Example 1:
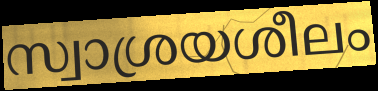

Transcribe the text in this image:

സ്വാശ്രയശീലം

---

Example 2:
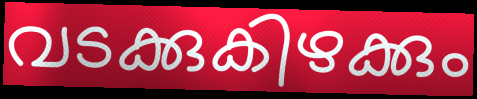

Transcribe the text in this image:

വടക്കുകിഴക്കും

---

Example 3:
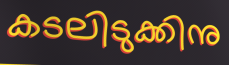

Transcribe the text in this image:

കടലിടുക്കിനു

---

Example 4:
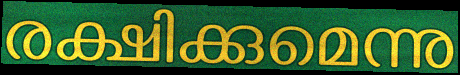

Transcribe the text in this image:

രക്ഷിക്കുമെന്നു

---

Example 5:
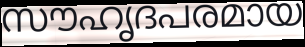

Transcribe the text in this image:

സൗഹൃദപരമായ